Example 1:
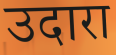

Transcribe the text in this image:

उदारा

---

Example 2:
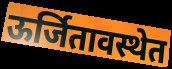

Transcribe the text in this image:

ऊर्जितावस्थेत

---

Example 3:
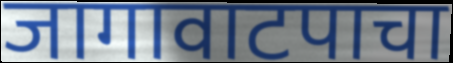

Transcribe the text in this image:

जागावाटपाचा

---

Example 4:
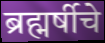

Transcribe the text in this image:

ब्रह्मर्षीचे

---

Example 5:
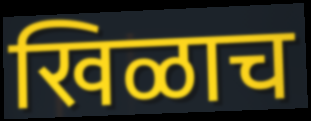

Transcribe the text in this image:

खिळाच